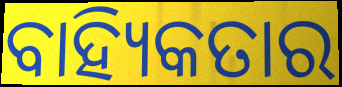
ବାହ୍ୟିକତାର